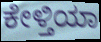
ಕೇಳ್ತಿಯಾ